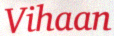
Vihaan